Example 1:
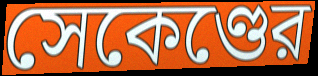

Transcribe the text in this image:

সেকেণ্ডের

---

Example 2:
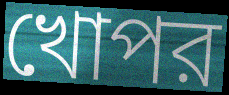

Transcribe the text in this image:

খোপর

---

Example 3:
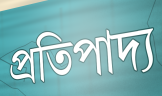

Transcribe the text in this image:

প্রতিপাদ্য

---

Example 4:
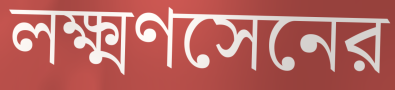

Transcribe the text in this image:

লক্ষ্মণসেনের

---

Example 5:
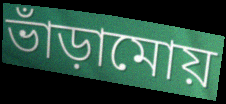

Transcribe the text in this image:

ভাঁড়ামোয়